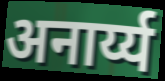
अनार्य्य